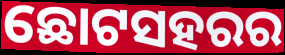
ଛୋଟସହରର